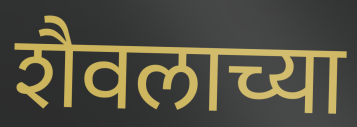
शैवलाच्या